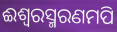
ଈଶ୍ଵରସ୍ମରଣମପି